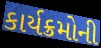
કાર્યક્રમોની